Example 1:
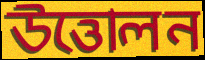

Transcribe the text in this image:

উত্তোলন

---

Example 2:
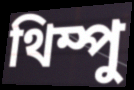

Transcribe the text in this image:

থিম্পু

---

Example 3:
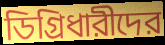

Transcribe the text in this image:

ডিগ্রিধারীদের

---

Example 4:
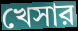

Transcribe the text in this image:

খেসার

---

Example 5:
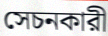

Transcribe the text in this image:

সেচনকারী